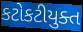
કટોકટીયુક્ત